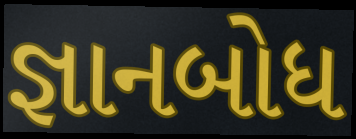
જ્ઞાનબોધ